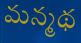
మన్మథ